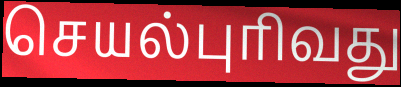
செயல்புரிவது